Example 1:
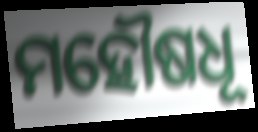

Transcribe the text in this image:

ମହୌଷଧୂ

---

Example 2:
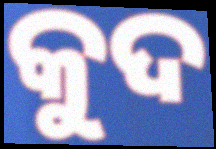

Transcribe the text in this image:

କୁଦ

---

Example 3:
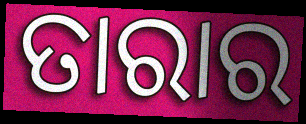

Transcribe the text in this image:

ତାରାର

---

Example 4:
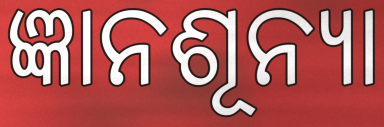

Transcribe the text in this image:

ଜ୍ଞାନଶୂନ୍ୟା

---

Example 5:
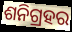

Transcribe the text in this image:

ଶନିଗ୍ରହର